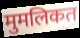
मुमलिकत